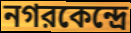
নগরকেন্দ্রে